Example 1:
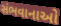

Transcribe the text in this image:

સંભવાનાઓ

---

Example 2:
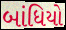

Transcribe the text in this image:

બાંધિયો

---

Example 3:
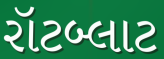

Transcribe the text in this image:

રૉટબ્લાટ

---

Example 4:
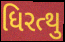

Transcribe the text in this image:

ધિરત્થુ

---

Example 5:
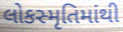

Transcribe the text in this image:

લોકસ્મૃતિમાંથી